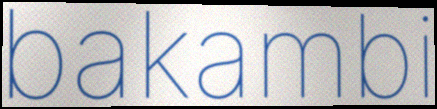
bakambi